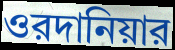
ওরদানিয়ার